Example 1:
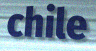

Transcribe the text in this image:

chile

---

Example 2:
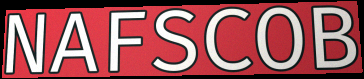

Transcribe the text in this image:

NAFSCOB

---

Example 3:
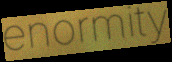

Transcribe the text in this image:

enormity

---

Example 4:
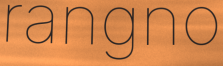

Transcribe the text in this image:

rangno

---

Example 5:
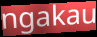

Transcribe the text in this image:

ngakau